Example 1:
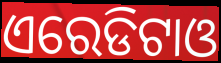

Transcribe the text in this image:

ଏରେଡିଟାଓ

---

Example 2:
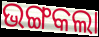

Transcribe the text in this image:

ଭଙ୍ଗକଲା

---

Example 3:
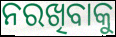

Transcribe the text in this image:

ନରଖିବାକୁ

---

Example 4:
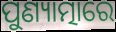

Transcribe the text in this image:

ପୁଣ୍ୟାତ୍ମାରେ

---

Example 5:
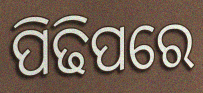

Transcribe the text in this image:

ପିଢିପରେ